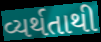
વ્યર્થતાથી